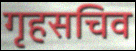
गृहसचिव